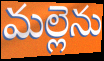
మల్లెను